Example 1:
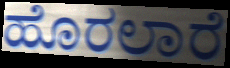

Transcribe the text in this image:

ಹೊರಲಾರೆ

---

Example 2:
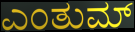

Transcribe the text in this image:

ಎಂತುಮ್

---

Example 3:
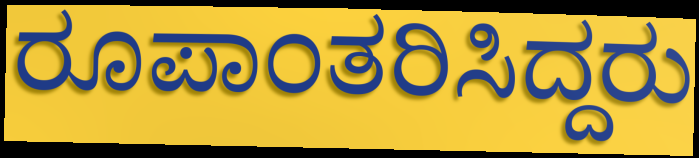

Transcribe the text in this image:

ರೂಪಾಂತರಿಸಿದ್ದರು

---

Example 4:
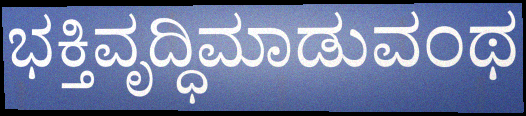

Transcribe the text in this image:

ಭಕ್ತಿವೃದ್ಧಿಮಾಡುವಂಥ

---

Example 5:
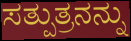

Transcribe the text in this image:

ಸತ್ಪುತ್ರನನ್ನು